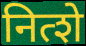
नित्शे